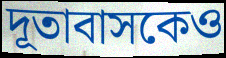
দূতাবাসকেও